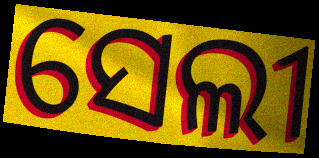
ସେଲୀ